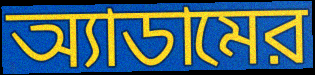
অ্যাডামের